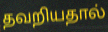
தவறியதால்